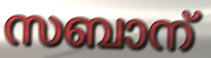
സബാന്